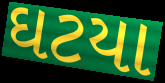
ઘટયા